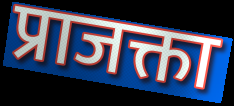
प्राजक्ता